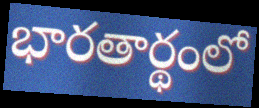
భారతార్థంలో